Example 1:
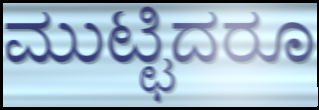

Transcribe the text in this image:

ಮುಟ್ಟಿದರೂ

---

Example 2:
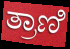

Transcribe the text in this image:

ತ್ರಾಣಿ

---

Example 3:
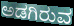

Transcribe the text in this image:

ಅಡಗಿರುವ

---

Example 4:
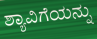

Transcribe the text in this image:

ಶ್ಯಾವಿಗೆಯನ್ನು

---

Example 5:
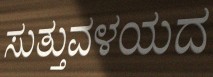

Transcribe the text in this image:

ಸುತ್ತುವಳಯದ